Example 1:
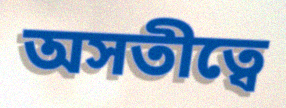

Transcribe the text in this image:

অসতীত্বে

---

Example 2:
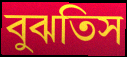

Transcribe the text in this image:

বুঝতিস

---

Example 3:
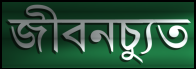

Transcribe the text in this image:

জীবনচ্যুত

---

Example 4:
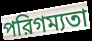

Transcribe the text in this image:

পরিগম্যতা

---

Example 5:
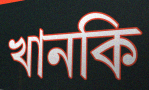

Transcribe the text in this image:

খানকি